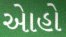
એાહો